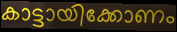
കാട്ടായിക്കോണം